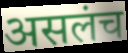
असलंच